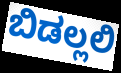
ಬಿಡಲ್ಲಲಿ